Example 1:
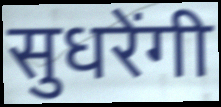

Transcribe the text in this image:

सुधरेंगी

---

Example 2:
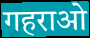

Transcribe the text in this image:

गहराओ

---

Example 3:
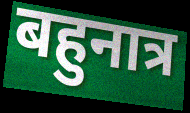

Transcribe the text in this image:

बहुनात्र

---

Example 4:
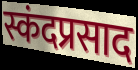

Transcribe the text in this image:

स्कंदप्रसाद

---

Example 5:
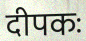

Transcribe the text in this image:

दीपकः